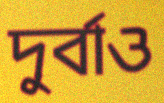
দুর্বাও